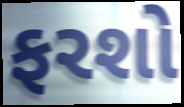
ફરશો